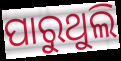
ପାରୁଥୁଲି